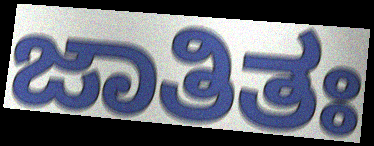
ಜಾತಿತಃ